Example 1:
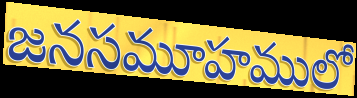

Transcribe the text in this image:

జనసమూహములో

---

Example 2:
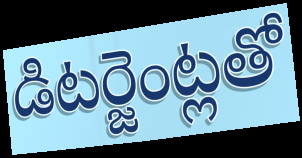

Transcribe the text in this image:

డిటర్జెంట్లతో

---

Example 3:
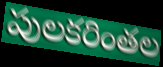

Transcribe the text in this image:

పులకరింతల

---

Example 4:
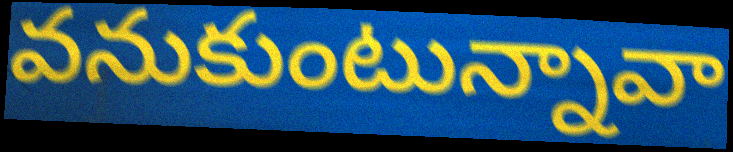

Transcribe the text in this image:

వనుకుంటున్నావా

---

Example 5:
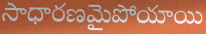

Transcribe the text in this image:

సాధారణమైపోయాయి